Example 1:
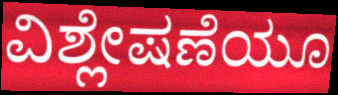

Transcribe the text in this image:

ವಿಶ್ಲೇಷಣೆಯೂ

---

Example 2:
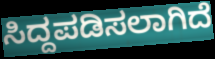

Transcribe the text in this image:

ಸಿದ್ದಪಡಿಸಲಾಗಿದೆ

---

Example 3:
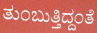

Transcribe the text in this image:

ತುಂಬುತ್ತಿದ್ದಂತೆ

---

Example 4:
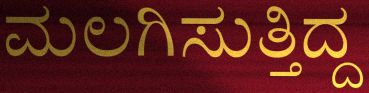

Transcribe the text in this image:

ಮಲಗಿಸುತ್ತಿದ್ದ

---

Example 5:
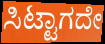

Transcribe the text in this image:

ಸಿಟ್ಟಾಗದೇ